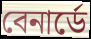
বেনাৰ্ডে